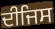
ਦੀਜਿਸ